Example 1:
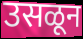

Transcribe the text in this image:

उसळून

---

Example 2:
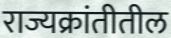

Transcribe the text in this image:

राज्यक्रांतीतील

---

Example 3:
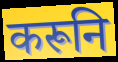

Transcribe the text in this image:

करूनि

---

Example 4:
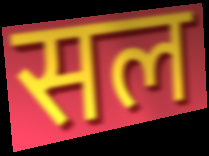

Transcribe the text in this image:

सल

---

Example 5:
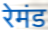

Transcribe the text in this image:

रेमंड